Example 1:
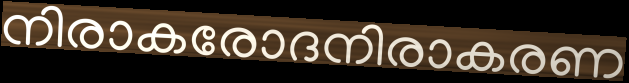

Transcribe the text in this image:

നിരാകരോദനിരാകരണ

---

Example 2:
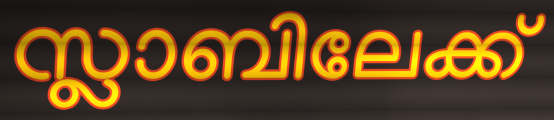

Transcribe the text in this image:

സ്ലാബിലേക്ക്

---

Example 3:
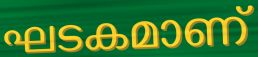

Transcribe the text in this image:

ഘടകമാണ്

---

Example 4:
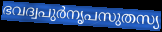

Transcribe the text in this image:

ഭവദ്വപുർനൃപസുതസ്യ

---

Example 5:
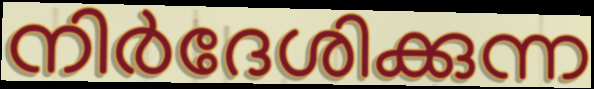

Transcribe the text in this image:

നിർദേശിക്കുന്ന